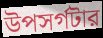
উপসর্গটার